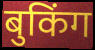
बुकिंग